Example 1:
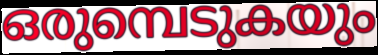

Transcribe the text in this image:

ഒരുമ്പെടുകയും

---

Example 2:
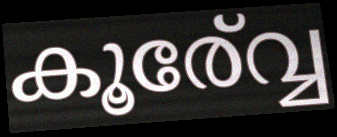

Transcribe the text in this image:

കൂര്വ്വേ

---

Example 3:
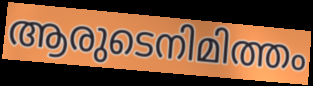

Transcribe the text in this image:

ആരുടെനിമിത്തം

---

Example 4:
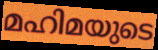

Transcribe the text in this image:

മഹിമയുടെ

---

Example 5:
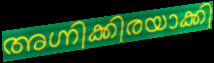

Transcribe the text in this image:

അഗ്നിക്കിരയാക്കി